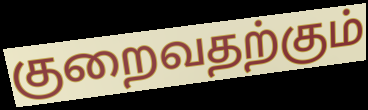
குறைவதற்கும்